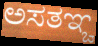
ಅಸತಞ್ಚ